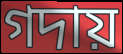
গদায়